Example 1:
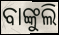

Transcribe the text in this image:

ବାଙ୍କୁଲି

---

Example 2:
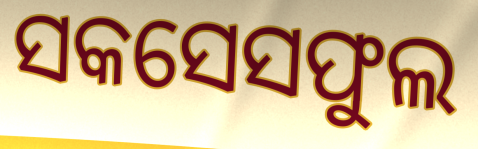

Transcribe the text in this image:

ସକସେସଫୁଲ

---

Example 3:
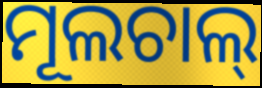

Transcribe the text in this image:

ମୂଲଚାଲ୍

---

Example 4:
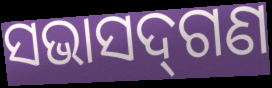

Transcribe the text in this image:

ସଭାସଦ୍‍ଗଣ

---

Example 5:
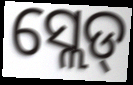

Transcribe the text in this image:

ସ୍ଲେଡ୍